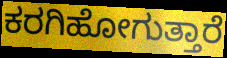
ಕರಗಿಹೋಗುತ್ತಾರೆ